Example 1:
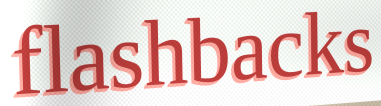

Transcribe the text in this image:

flashbacks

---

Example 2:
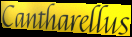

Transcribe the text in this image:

Cantharellus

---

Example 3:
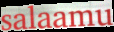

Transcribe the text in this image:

salaamu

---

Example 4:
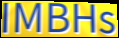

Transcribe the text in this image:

IMBHs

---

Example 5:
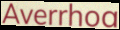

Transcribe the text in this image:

Averrhoa